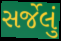
સર્જેલું